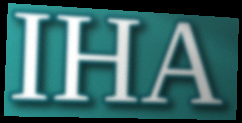
IHA